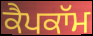
ਕੈਪਕਾੱਮ